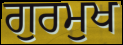
ਗੁਰਮੁਖ